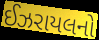
ઈઝરાયલનો